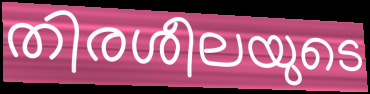
തിരശീലയുടെ